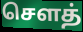
சௌத்